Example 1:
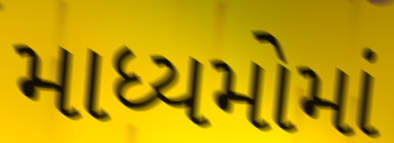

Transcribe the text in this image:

માધ્યમોમાં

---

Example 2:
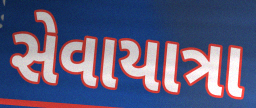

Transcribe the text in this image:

સેવાયાત્રા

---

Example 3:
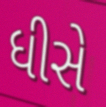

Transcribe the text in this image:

ધીસે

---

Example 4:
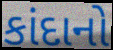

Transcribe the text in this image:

કાંદાનો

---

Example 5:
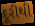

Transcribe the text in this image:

દૂરીથી